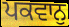
ਪਕਵਾਨੁ